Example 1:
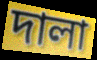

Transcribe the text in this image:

দালা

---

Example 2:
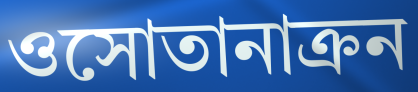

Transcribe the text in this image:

ওসোতানাক্রন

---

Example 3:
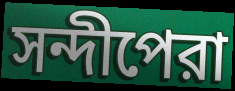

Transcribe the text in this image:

সন্দীপেরা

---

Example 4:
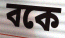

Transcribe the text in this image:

বকে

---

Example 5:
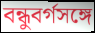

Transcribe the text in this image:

বন্ধুবর্গসঙ্গে